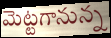
మెట్టగానున్న